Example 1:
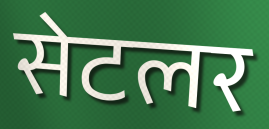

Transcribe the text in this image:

सेटलर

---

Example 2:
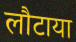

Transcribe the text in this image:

लौटाया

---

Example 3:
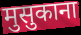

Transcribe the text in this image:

मुसुकाना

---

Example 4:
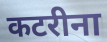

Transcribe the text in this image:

कटरीना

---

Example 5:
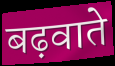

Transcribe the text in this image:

बढ़वाते